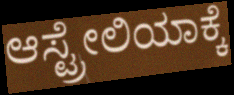
ಆಸ್ಟ್ರೇಲಿಯಾಕ್ಕೆ